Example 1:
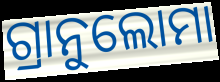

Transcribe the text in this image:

ଗ୍ରାନୁଲୋମା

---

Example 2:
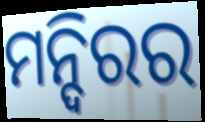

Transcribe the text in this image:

ମନ୍ଦିରର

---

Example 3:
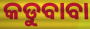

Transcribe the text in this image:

କଡୁବାବା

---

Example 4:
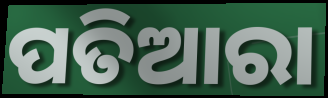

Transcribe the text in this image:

ପତିଆରା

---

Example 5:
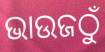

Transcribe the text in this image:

ଭାଉଜଠୁଁ